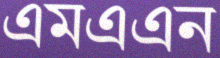
এমএএন